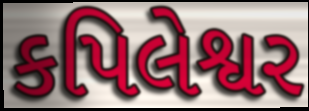
કપિલેશ્વર